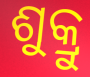
ଶୁକ୍ରୁ